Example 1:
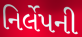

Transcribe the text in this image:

નિર્લેપની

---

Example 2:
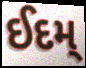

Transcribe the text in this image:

ઈદમ્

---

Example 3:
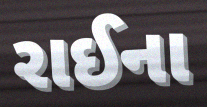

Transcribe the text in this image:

રાઈના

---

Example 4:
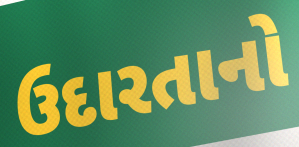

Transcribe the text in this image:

ઉદારતાનો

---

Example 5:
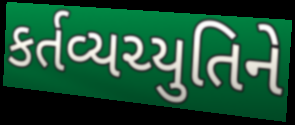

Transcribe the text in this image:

કર્તવ્યચ્યુતિને